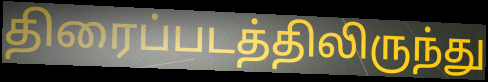
திரைப்படத்திலிருந்து